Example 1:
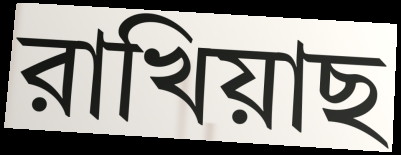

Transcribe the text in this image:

রাখিয়াছ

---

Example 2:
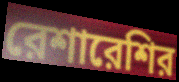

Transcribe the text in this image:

রেশারেশির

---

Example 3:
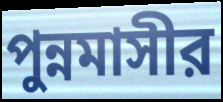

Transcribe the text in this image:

পুন্নমাসীর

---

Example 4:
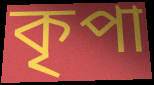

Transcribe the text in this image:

কৃপা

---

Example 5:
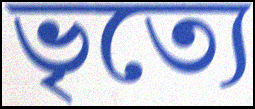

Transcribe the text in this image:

ভৃত্যে